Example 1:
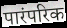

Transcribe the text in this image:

पारंपरिक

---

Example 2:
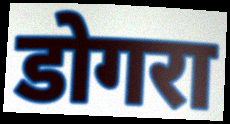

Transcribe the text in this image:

डोगरा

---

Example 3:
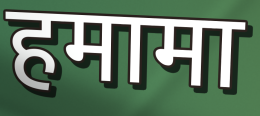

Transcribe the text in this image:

हमामा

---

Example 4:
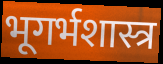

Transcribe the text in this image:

भूगर्भशास्त्र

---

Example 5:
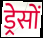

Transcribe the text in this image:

ड्रेसों